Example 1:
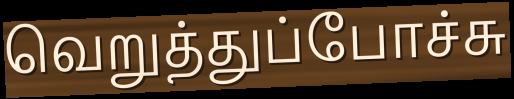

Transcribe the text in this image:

வெறுத்துப்போச்சு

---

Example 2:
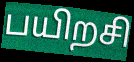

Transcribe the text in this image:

பயிறசி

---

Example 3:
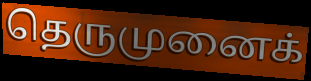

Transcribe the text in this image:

தெருமுனைக்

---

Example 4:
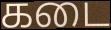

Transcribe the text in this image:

கடை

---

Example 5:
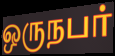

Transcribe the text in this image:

ஒருநபர்